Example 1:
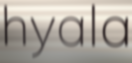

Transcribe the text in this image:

hyala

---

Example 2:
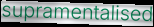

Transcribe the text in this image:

supramentalised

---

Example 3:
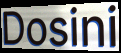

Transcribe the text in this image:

Dosini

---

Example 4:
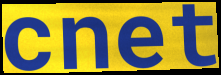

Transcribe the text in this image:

cnet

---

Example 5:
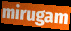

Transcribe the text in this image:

mirugam